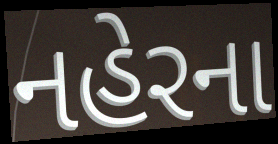
નહેરના